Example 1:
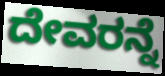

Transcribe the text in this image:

ದೇವರನ್ನೆ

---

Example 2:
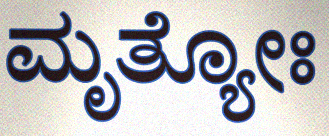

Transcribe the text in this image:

ಮೃತ್ಯೋಃ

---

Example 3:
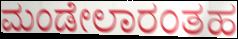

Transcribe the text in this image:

ಮಂಡೇಲಾರಂತಹ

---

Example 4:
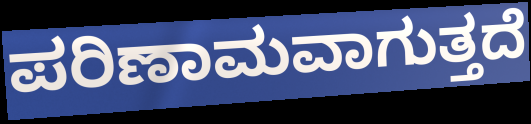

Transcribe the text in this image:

ಪರಿಣಾಮವಾಗುತ್ತದೆ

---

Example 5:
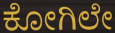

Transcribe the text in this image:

ಕೋಗಿಲೇ